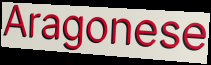
Aragonese